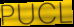
PUCL